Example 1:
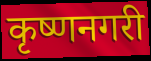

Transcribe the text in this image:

कृष्णनगरी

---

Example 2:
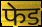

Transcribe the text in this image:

फेड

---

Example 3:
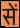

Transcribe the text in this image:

सें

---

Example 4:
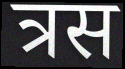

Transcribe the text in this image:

त्रस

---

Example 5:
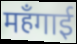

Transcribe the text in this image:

महँगाई